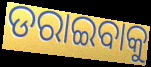
ଡରାଇବାକୁ